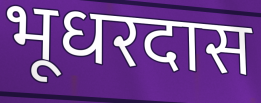
भूधरदास